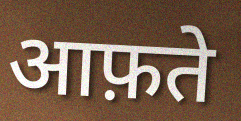
आफ़ते